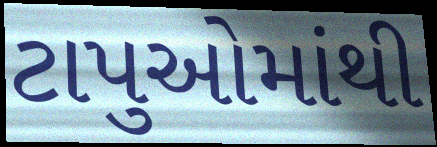
ટાપુઓમાંથી